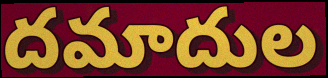
దమాదుల